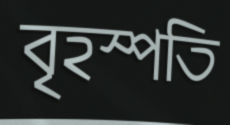
বৃহস্পতি